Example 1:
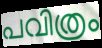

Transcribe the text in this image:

പവിത്രം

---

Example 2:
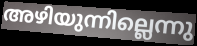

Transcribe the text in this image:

അഴിയുന്നില്ലെന്നു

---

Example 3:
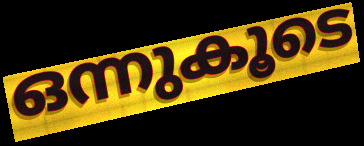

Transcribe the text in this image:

ഒന്നുകൂടെ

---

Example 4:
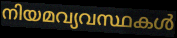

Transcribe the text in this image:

നിയമവ്യവസ്ഥകൾ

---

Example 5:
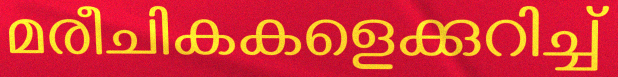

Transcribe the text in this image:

മരീചികകളെക്കുറിച്ച്